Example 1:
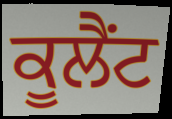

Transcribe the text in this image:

ਕੂਲੈਂਟ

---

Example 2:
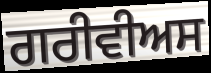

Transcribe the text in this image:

ਗਰੀਵੀਅਸ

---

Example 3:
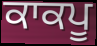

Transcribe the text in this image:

ਕਾਕਪੂ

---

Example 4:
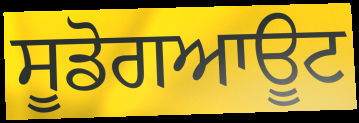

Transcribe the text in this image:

ਸੂਡੋਗਆਊਟ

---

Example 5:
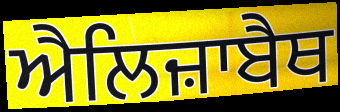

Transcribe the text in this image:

ਐਲਿਜ਼ਾਬੈਥ